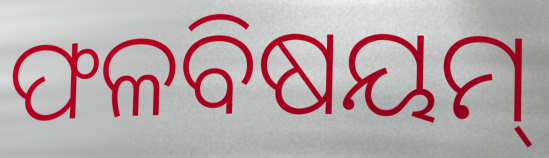
ଫଳବିଷୟମ୍